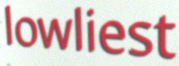
lowliest